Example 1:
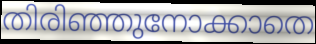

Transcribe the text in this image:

തിരിഞ്ഞുനോക്കാതെ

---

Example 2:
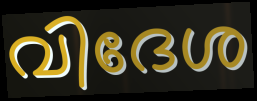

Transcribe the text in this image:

വിദേശ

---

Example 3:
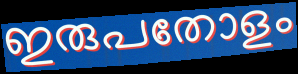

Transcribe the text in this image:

ഇരുപതോളം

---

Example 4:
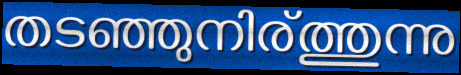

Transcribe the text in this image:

തടഞ്ഞുനിര്ത്തുന്നു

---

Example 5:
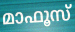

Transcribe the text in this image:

മാഫൂസ്